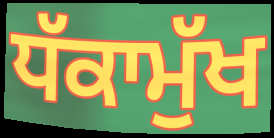
ਧੱਕਾਮੁੱਖ